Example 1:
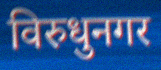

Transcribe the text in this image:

विरुधुनगर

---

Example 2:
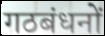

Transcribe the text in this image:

गठबंधनों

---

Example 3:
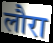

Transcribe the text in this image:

लौरा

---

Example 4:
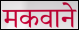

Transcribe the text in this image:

मकवाने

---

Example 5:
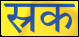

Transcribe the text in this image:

स्रक